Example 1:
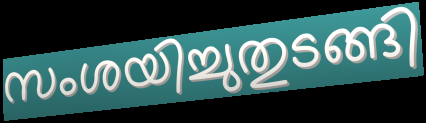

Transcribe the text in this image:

സംശയിച്ചുതുടങ്ങി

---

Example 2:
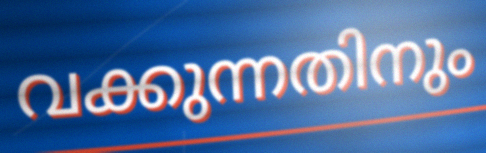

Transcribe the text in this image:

വക്കുന്നതിനും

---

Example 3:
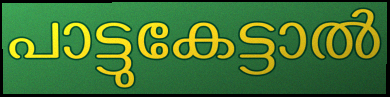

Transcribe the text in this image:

പാട്ടുകേട്ടാൽ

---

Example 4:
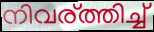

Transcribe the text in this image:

നിവര്ത്തിച്ച്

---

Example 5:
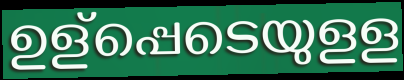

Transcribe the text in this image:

ഉള്പ്പെടെയുളള